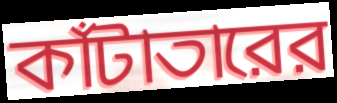
কাঁটাতারের